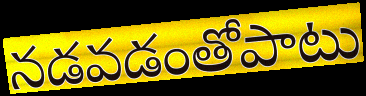
నడవడంతోపాటు